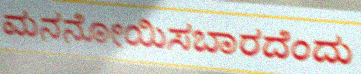
ಮನನೋಯಿಸಬಾರದೆಂದು